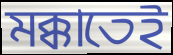
মক্কাতেই